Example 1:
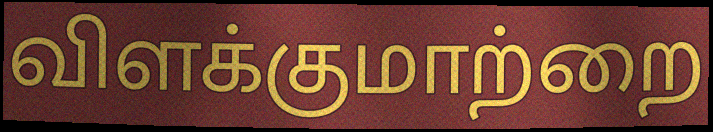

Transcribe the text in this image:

விளக்குமாற்றை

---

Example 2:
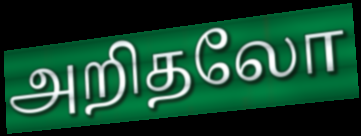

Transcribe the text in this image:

அறிதலோ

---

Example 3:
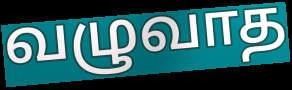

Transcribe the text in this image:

வழுவாத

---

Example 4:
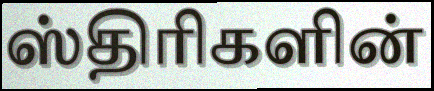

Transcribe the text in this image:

ஸ்திரிகளின்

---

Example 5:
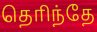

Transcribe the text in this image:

தெரிந்தே